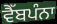
ਵੈੱਬਪੰਨਾ